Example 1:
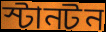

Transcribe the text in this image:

স্টানটন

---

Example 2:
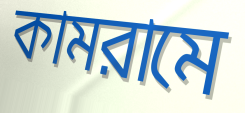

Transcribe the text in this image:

কামরামে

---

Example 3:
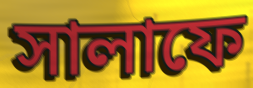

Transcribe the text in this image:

সালাফে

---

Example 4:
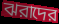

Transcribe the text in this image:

ঝরাদের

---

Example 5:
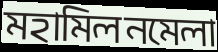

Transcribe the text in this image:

মহামিলনমেলা